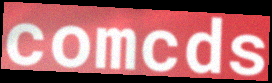
comcds